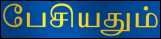
பேசியதும்